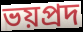
ভয়প্রদ